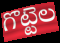
గొట్టెల